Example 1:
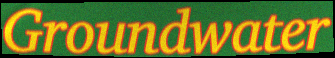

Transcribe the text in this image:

Groundwater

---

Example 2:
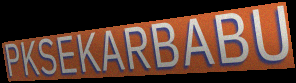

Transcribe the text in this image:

PKSEKARBABU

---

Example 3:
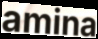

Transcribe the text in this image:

amina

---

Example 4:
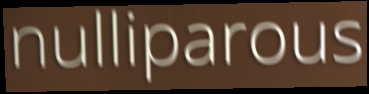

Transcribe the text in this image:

nulliparous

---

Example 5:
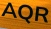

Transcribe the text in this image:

AQR